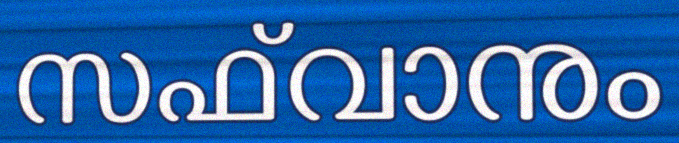
സഫ്‌വാനും